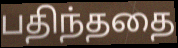
பதிந்ததை